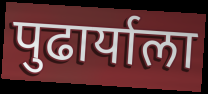
पुढार्याला